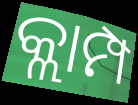
କ୍ଲାମ୍ପ